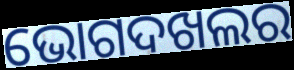
ଭୋଗଦଖଲର